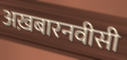
अख़बारनवीसी